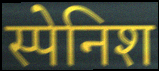
स्पेनिश